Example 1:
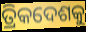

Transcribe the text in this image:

ତ୍ରିକଦେଶକୁ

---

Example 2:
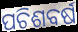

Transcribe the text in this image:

ପଚିଶବର୍ଷ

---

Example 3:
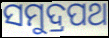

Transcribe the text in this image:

ସମୁଦ୍ରପଥ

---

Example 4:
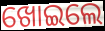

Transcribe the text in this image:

ଖୋଇଲେ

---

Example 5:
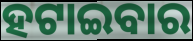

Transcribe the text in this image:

ହଟାଇବାର